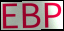
EBP